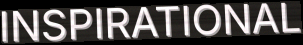
INSPIRATIONAL